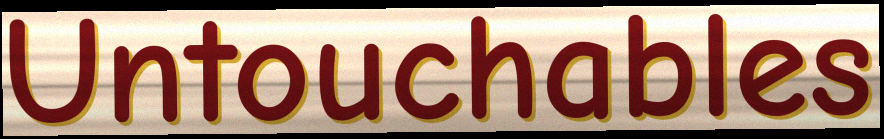
Untouchables